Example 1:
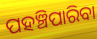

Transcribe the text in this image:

ପହଞ୍ଚିପାରିବା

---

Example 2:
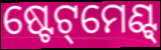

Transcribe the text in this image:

ଷ୍ଟେଟ୍‌ମେଣ୍ଟ୍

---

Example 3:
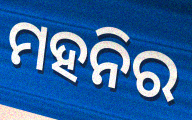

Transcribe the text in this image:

ମହନିର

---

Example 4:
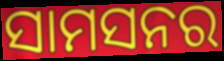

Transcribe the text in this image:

ସାମସନର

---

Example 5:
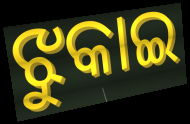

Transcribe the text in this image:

ଝୁକାଇ